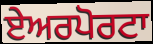
ਏਅਰਪੋਰਟਾ